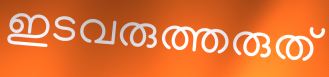
ഇടവരുത്തരുത്